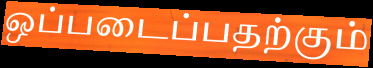
ஒப்படைப்பதற்கும்